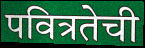
पवित्रतेची